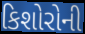
કિશોરોની